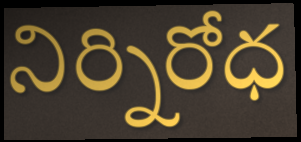
నిర్నిరోధ